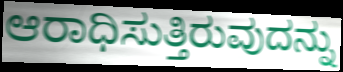
ಆರಾಧಿಸುತ್ತಿರುವುದನ್ನು